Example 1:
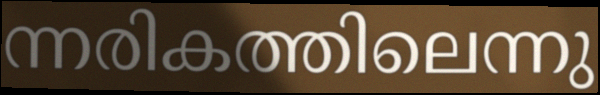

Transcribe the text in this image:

ന്നരികത്തിലെന്നു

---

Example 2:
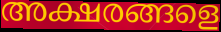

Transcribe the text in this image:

അക്ഷരങ്ങളെ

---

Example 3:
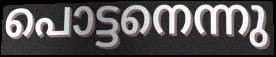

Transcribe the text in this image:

പൊട്ടനെന്നു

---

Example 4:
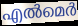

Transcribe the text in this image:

എൽമെർ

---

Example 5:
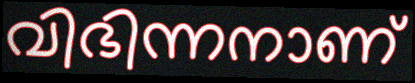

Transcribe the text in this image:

വിഭിന്നനാണ്